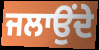
ਜਲਾਉਂਦੇ